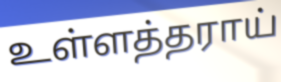
உள்ளத்தராய்